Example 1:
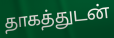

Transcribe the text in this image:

தாகத்துடன்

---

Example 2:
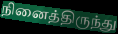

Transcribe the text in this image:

நினைத்திருந்து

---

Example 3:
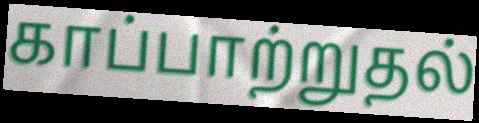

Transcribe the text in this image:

காப்பாற்றுதல்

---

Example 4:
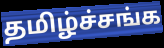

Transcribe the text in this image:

தமிழ்ச்சங்க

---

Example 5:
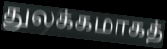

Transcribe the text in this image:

துலக்கமாகத்